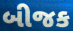
બીજક